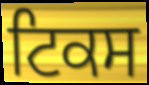
ਟਿਕਸ